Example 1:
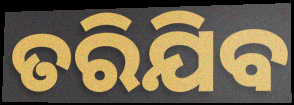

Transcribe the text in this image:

ତରିଯିବ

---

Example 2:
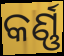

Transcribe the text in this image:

କର୍ଣ୍ଣ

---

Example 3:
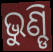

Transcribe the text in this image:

ଭୁଣ୍ଡି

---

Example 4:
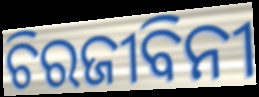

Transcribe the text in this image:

ଚିରଜୀବିନୀ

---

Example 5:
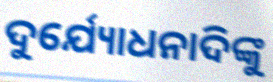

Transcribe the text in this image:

ଦୁର୍ଯ୍ୟୋଧନାଦିଙ୍କୁ